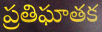
ప్రతిఘాతక